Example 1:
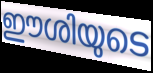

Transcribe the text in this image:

ഈശിയുടെ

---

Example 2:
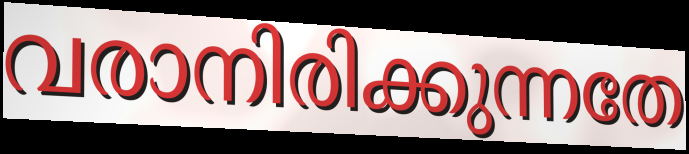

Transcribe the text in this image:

വരാനിരിക്കുന്നതേ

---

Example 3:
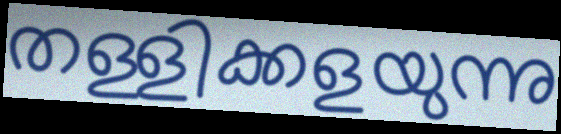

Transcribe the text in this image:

തള്ളിക്കളയുന്നു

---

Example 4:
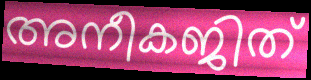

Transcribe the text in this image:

അനീകജിത്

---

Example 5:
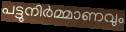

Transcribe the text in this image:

പട്ടുനിർമ്മാണവും